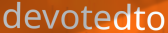
devotedto